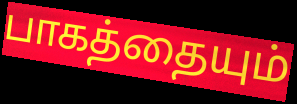
பாகத்தையும்